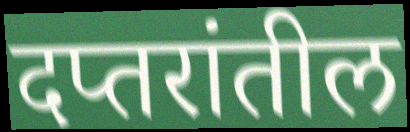
दप्तरांतील